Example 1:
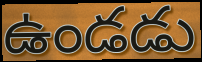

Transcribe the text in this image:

ఉండడు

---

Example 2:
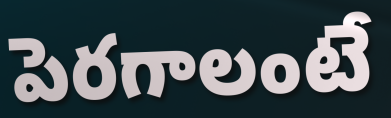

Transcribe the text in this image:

పెరగాలంటే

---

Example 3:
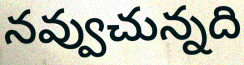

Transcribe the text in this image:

నవ్వుచున్నది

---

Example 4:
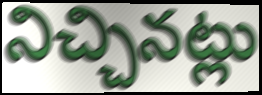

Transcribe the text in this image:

నిచ్చినట్లు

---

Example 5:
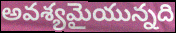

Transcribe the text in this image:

అవశ్యమైయున్నది